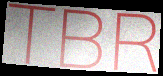
TBR